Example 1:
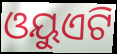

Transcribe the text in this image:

ଓୟୁଏଟି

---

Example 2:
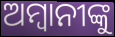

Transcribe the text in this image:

ଅମ୍ବାନୀଙ୍କୁ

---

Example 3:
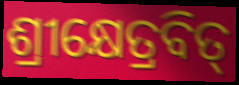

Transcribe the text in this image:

ଶ୍ରୀକ୍ଷେତ୍ରବିତ୍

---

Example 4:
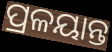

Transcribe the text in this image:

ପ୍ରଳୟାନ୍ତ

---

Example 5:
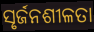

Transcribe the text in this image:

ସୃର୍ଜନଶୀଳତା